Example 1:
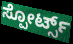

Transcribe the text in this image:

ಸ್ಪೋರ್ಟ್ಸ್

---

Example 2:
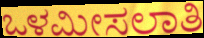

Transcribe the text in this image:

ಒಳಮೀಸಲಾತಿ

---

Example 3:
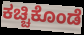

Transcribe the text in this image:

ಕಚ್ಚಿಕೊಂಡೆ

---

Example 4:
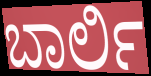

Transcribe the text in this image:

ಬಾರ್ಲಿ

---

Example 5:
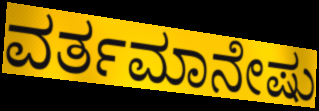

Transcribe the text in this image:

ವರ್ತಮಾನೇಷು